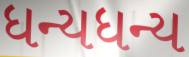
ધન્યધન્ય